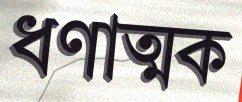
ধণাত্মক